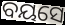
ବୟସେ